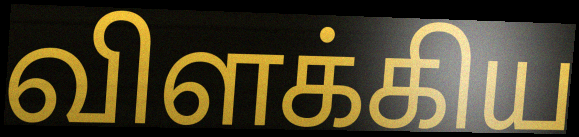
விளக்கிய